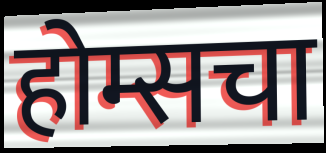
होम्सचा